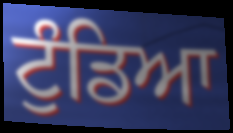
ਟੁੰਡਿਆ